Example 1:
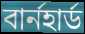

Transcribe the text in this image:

বার্নহার্ড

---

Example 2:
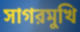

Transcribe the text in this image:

সাগরমুখি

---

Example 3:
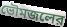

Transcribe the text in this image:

ভৌমজলের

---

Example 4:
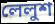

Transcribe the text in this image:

লেলুশ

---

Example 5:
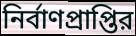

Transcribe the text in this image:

নির্বাণপ্রাপ্তির